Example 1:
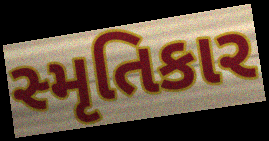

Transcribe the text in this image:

સ્મૃતિકાર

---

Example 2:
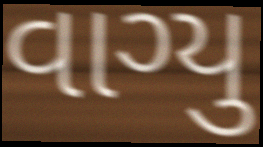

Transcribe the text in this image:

વાગ્યુ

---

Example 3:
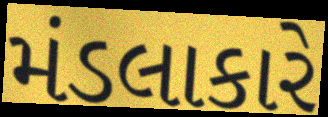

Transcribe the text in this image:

મંડલાકારે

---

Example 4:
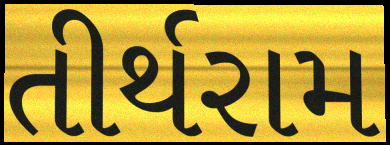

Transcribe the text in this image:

તીર્થરામ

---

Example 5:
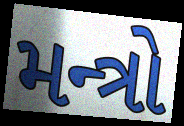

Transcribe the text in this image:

મન્ત્રો